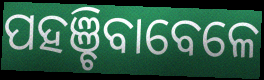
ପହଞ୍ଚିବାବେଳେ